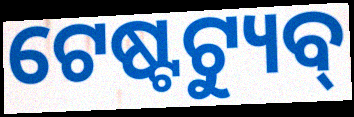
ଟେଷ୍ଟଟ୍ୟୁବ୍